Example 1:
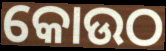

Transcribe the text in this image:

କୋଉଠ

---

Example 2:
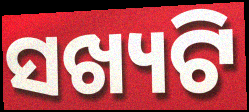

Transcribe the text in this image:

ସଖ୍ୟଟି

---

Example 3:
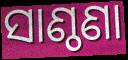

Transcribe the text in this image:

ସାଣ୍ଠଣା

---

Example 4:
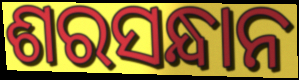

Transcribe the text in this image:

ଶରସନ୍ଧାନ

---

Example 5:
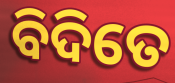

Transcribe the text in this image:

ବିଦିତେ